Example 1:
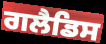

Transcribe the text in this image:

ਗਲੈਡਿਸ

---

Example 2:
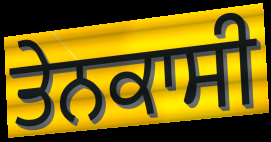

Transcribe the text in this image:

ਤੇਨਕਾਸੀ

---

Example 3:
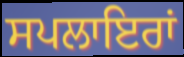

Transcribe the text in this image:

ਸਪਲਾਇਰਾਂ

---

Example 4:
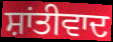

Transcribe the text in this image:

ਸ਼ਾਂਤੀਵਾਦ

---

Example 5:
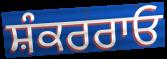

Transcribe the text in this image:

ਸ਼ੰਕਰਰਾਓ